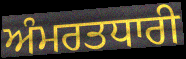
ਅੰਮਰਤਧਾਰੀ